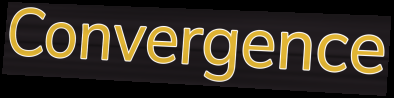
Convergence